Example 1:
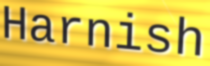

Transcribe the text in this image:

Harnish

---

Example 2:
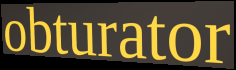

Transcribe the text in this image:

obturator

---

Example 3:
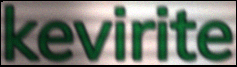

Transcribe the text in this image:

kevirite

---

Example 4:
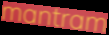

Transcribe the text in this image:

mantram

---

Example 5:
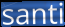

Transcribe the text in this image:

santi